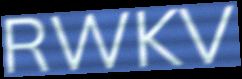
RWKV